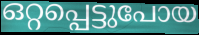
ഒറ്റപ്പെട്ടുപോയ